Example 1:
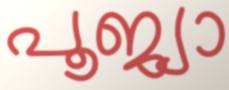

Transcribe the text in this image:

പൂജ്യാ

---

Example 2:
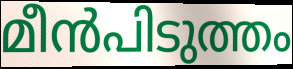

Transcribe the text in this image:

മീൻപിടുത്തം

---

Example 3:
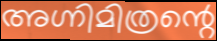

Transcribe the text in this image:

അഗ്നിമിത്രന്റെ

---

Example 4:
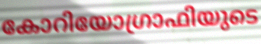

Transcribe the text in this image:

കോറിയോഗ്രാഫിയുടെ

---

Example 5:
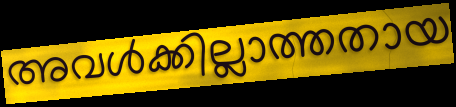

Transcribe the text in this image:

അവൾക്കില്ലാത്തതായ